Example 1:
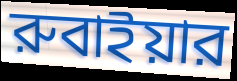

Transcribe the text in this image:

রুবাইয়ার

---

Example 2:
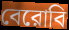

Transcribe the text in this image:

বেরোবি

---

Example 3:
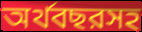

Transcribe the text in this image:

অর্থবছরসহ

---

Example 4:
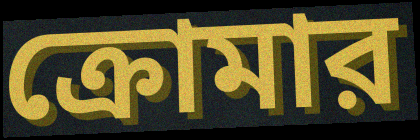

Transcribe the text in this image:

ক্রোমার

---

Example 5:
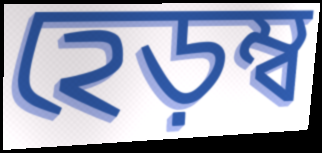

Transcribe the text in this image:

হেড়ম্ব